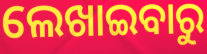
ଲେଖାଇବାରୁ